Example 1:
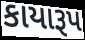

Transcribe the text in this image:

કાયારૂપ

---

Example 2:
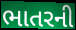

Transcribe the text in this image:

ભાતરની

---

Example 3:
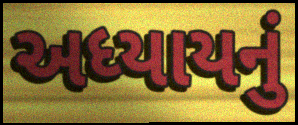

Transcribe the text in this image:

અધ્યાયનું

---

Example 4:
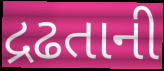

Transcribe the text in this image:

દ્રઢતાની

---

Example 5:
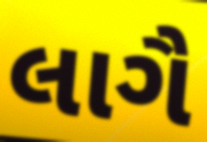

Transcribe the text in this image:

લાગૈ